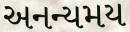
અનન્યમય